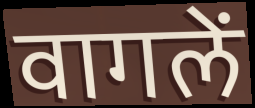
वागलें